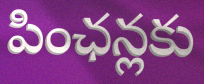
పింఛన్లకు